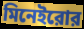
মিনেইরোর